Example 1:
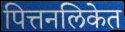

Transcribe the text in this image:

पित्तनलिकेत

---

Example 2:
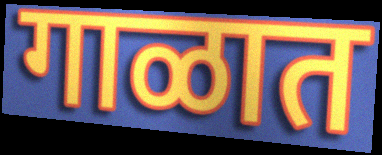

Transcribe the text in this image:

गाळात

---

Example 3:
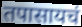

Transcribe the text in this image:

तपासायचं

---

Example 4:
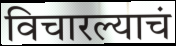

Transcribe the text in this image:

विचारल्याचं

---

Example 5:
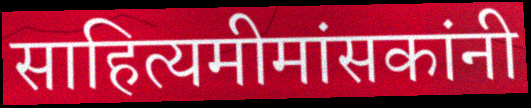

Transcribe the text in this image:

साहित्यमीमांसकांनी